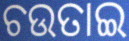
ଚଉତାଇ